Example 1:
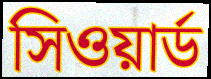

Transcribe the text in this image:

সিওয়ার্ড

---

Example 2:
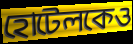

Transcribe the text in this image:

হোটেলকেও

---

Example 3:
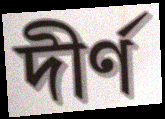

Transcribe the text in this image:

দীর্ণ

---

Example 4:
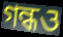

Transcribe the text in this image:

গন্ধও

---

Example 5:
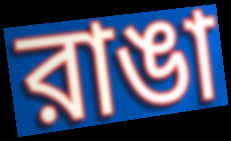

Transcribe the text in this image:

রাঙা